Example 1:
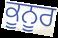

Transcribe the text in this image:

ਕੂਨੂਰ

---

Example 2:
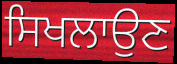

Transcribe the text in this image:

ਸਿਖਲਾਉਣ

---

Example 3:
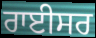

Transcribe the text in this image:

ਰਾਈਸਰ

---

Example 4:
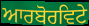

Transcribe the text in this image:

ਆਰਬੋਰਵਿਟੇ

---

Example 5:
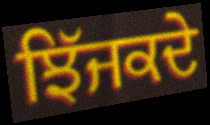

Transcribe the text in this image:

ਝਿੱਜਕਦੇ